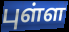
புள்ள